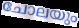
ചോലയും